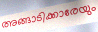
അങ്ങാടിക്കാരേയും